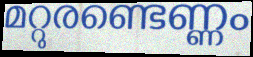
മറ്റുരണ്ടെണ്ണം